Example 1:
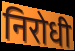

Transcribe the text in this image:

निरोधी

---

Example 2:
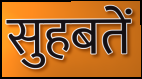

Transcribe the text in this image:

सुहबतें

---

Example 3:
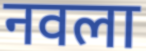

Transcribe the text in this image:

नवला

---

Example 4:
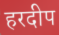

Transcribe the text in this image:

हरदीप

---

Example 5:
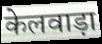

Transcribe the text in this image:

केलवाड़ा